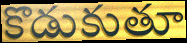
కొడుకుతూ